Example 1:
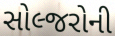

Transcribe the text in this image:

સોલ્જરોની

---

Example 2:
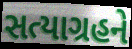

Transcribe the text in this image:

સત્યાગ્રહને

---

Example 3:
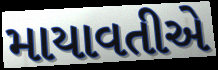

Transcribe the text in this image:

માયાવતીએ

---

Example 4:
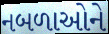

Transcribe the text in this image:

નબળાઓને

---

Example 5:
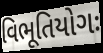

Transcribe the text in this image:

વિભૂતિયોગઃ